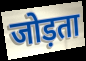
जोड़ता